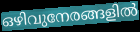
ഒഴിവുനേരങ്ങളിൽ